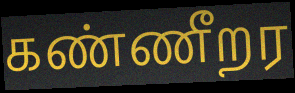
கண்ணீறர